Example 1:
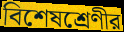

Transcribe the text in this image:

বিশেষশ্রেণীর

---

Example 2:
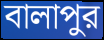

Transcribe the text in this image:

বালাপুর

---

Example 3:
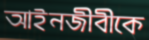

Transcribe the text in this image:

আইনজীবীকে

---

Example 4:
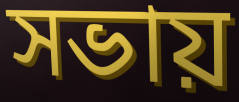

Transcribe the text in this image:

সভায়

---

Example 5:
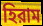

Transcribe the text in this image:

হিরাম